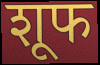
शूफ